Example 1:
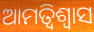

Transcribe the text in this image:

ଆମତ୍ବିଶ୍ୱାସ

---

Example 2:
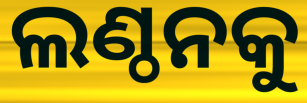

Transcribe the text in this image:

ଲଣ୍ଠନକୁ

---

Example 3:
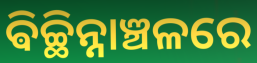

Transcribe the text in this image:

ଵିଚ୍ଛିନ୍ନାଞ୍ଚଳରେ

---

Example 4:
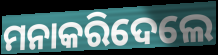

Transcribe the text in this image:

ମନାକରିଦେଲେ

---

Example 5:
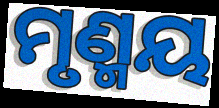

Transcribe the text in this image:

ମୃଣ୍ମୟ